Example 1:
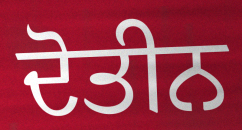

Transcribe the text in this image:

ਦੋਤੀਨ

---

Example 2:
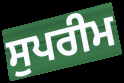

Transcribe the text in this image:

ਸੁਪਰੀਮ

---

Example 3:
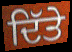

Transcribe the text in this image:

ਦਿੱਤੇ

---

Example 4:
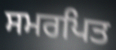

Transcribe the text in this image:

ਸਮਰਪਿਤ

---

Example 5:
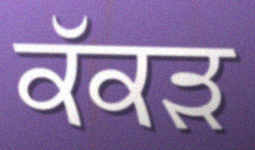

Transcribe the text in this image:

ਕੱਕੜ